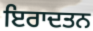
ਇਰਾਦਤਨ